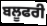
ਬਲੂਫਰੀ